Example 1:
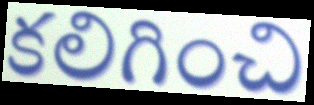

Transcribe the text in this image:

కలిగించి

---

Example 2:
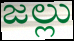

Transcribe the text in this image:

జల్లు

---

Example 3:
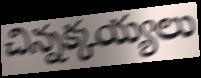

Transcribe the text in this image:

చిన్నక్కయ్యలు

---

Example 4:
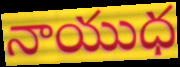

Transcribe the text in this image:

నాయుధ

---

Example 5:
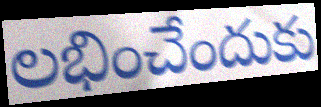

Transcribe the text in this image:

లభించేందుకు